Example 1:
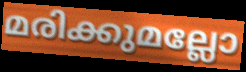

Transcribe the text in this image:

മരിക്കുമല്ലോ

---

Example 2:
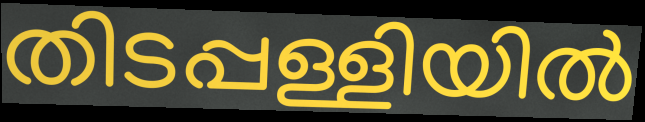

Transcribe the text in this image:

തിടപ്പള്ളിയിൽ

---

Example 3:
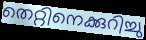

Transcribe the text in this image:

തെറ്റിനെക്കുറിച്ചു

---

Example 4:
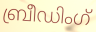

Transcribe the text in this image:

ബ്രീഡിംഗ്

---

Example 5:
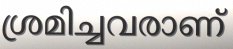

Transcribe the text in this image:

ശ്രമിച്ചവരാണ്